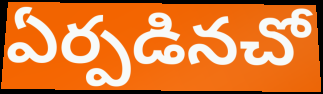
ఏర్పడినచో